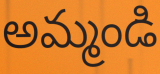
అమ్మండి